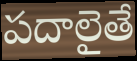
పదాలైతే